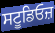
ਸਟੂਡਿਓਜ਼